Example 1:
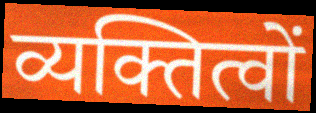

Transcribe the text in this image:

व्यक्तित्वों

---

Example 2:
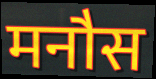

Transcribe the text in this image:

मनौस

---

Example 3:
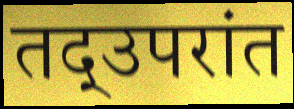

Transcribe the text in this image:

तद्उपरांत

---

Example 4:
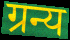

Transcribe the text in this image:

ग्रन्य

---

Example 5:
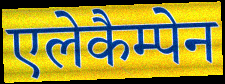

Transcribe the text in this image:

एलेकैम्पेन